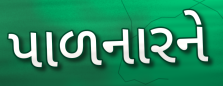
પાળનારને